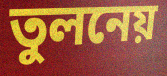
তুলনেয়